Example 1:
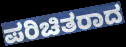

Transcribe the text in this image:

ಪರಿಚಿತರಾದ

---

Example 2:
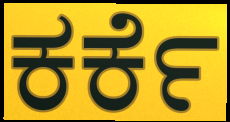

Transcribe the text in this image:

ಕರ್ಕೆ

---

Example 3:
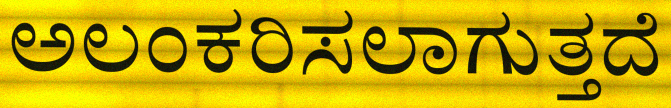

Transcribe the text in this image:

ಅಲಂಕರಿಸಲಾಗುತ್ತದೆ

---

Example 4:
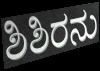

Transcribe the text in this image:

ಶಿಶಿರನು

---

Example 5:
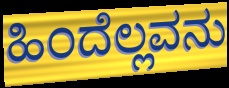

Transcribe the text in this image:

ಹಿಂದೆಲ್ಲವನು